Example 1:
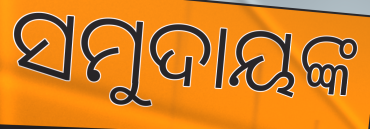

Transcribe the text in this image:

ସମୁଦାୟଙ୍କ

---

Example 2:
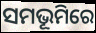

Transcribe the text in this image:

ସମଭୂମିରେ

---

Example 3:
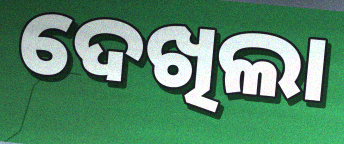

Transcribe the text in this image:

ଦେଖିଲା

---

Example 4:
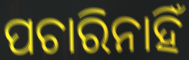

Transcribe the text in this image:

ପଚାରିନାହିଁ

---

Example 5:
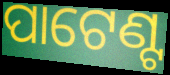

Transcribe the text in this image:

ପାଟେଣ୍ଟ